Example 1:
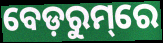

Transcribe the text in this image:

ବେଡ଼ରୁମ୍‌ରେ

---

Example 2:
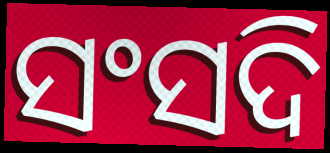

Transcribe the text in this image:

ସଂସଦି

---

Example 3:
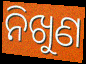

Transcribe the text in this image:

ନିଖୁଣ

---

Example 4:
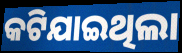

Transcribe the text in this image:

କଟିଯାଇଥିଲା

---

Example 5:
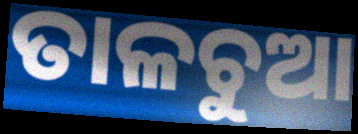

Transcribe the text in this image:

ତାଳଚୁଆ